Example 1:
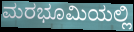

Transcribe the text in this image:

ಮರಭೂಮಿಯಲ್ಲಿ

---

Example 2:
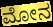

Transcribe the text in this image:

ಮೋನ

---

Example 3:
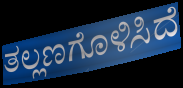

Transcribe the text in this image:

ತಲ್ಲಣಗೊಳಿಸಿದೆ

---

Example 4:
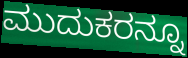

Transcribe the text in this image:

ಮುದುಕರನ್ನೂ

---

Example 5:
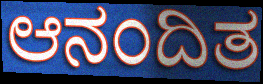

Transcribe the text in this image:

ಆನಂದಿತ